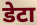
डेटा